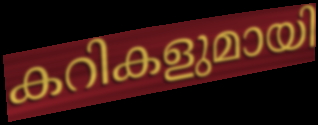
കറികളുമായി